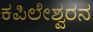
ಕಪಿಲೇಶ್ವರನ